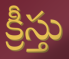
క్రీస్తు